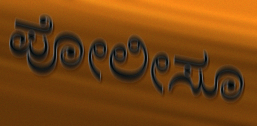
ಪೋಲೀಸೂ